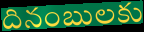
దినంబులకు